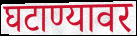
घटाण्यावर